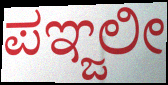
ಪಞ್ಜಲೀ